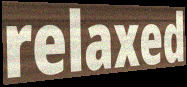
relaxed